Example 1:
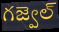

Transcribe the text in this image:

గజ్వెల్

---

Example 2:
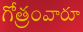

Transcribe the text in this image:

గోత్రంవారూ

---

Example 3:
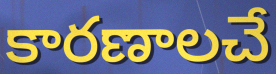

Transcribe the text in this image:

కారణాలచే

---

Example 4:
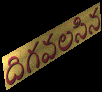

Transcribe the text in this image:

దిగవలసిన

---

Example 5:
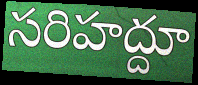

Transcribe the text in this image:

సరిహద్దూ